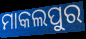
ମାକଲପୁର